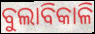
ବୁଲାବିକାଳି